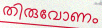
തിരുവോണം